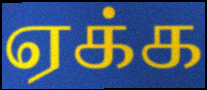
ஏக்க